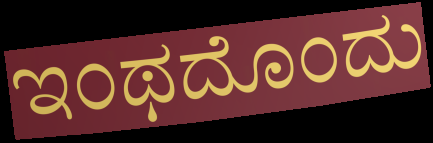
ಇಂಥದೊಂದು